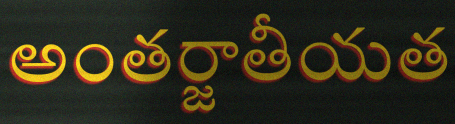
అంతర్జాతీయత